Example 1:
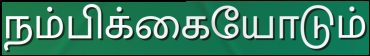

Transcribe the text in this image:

நம்பிக்கையோடும்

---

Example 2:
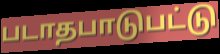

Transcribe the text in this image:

படாதபாடுபட்டு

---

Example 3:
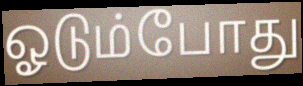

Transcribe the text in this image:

ஓடும்போது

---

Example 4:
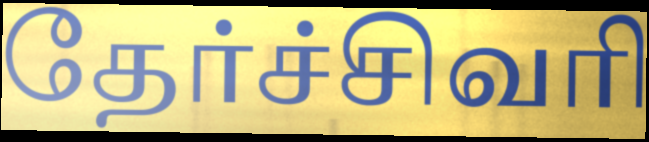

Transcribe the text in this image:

தேர்ச்சிவரி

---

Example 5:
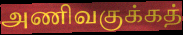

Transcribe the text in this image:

அணிவகுக்கத்